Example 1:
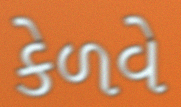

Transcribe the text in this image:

કેળવે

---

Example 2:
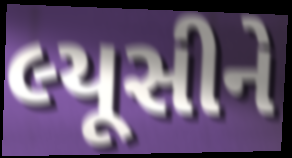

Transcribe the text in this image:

લ્યૂસીને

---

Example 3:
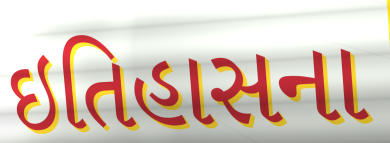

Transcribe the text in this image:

ઇતિહાસના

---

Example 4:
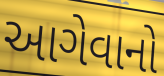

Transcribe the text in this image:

આગેવાનો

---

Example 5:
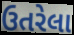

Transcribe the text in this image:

ઉતરેલા